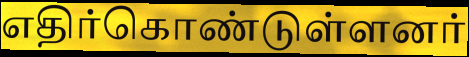
எதிர்கொண்டுள்ளனர்